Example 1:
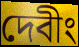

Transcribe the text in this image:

দেবীং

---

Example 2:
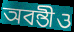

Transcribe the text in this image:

অবন্তীও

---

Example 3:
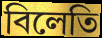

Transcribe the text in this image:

বিলেতি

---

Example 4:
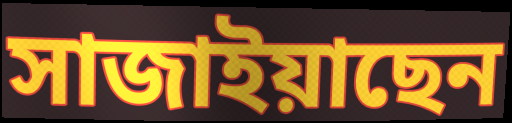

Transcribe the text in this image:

সাজাইয়াছেন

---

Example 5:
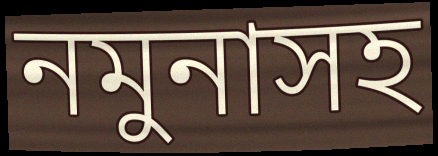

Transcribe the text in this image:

নমুনাসহ